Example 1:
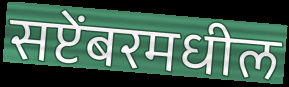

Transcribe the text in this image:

सप्टेंबरमधील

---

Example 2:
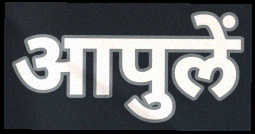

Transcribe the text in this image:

आपुलें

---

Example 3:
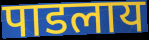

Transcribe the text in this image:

पाडलाय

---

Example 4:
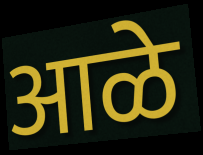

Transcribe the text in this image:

आळे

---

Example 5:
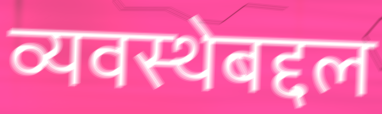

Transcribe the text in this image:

व्यवस्थेबद्दल